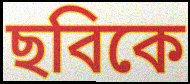
ছবিকে